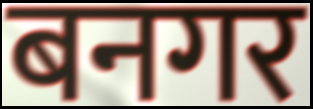
बनगर